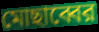
মোছাব্বের